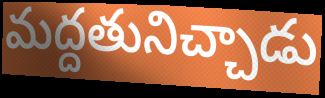
మద్దతునిచ్చాడు